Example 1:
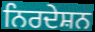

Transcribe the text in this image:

ਨਿਰਦੇਸ਼ਨ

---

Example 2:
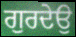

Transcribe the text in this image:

ਗੁਰਦੇਉ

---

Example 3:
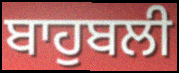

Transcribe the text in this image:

ਬਾਹੁਬਲੀ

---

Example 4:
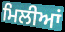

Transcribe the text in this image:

ਮਿਲੀਆਂ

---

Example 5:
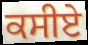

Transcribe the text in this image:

ਕਸੀਏ